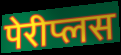
पेरीप्लस